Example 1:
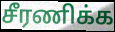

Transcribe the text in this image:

சீரணிக்க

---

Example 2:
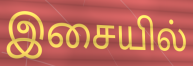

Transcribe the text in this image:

இசையில்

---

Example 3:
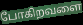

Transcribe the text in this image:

போகிறவளை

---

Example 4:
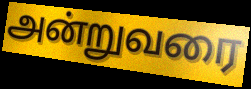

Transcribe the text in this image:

அன்றுவரை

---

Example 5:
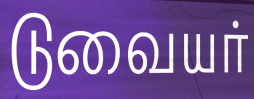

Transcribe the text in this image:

டுவையர்